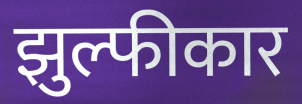
झुल्फीकार